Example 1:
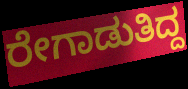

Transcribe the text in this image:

ರೇಗಾಡುತಿದ್ದ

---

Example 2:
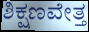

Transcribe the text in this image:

ಶಿಕ್ಷಣವೇತ್ತ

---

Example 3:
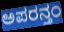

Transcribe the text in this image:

ಅಪರನ್ತಂ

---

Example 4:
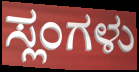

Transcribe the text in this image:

ಸ್ಲಂಗಳು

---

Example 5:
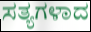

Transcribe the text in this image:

ಸತ್ಯಗಳಾದ